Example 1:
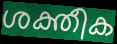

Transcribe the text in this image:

ശക്തീക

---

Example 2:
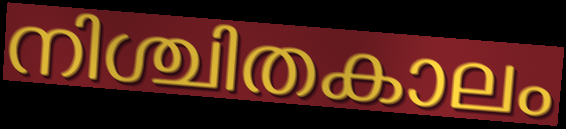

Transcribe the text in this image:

നിശ്ചിതകാലം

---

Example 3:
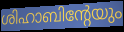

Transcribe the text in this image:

ശിഹാബിന്റേയും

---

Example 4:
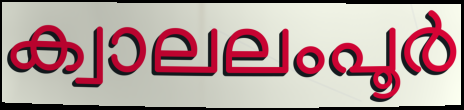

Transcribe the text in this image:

ക്വാലലംപൂർ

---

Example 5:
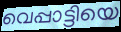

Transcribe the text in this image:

വെപ്പാട്ടിയെ